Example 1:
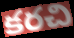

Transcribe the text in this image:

కరచి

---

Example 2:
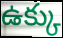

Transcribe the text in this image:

ఉక్కు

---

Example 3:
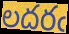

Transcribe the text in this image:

లదరఁ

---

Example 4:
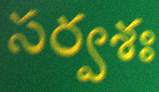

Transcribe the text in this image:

సర్వశః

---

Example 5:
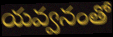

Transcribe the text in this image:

యవ్వనంతో